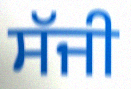
ਸੱਜੀ